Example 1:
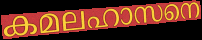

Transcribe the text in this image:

കമലഹാസനെ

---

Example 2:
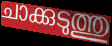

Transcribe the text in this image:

ചാക്കുടുത്തു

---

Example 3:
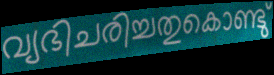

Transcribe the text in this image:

വ്യഭിചരിച്ചതുകൊണ്ടു്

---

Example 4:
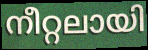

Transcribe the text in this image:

നീറ്റലായി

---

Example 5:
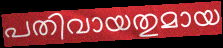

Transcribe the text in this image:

പതിവായതുമായ